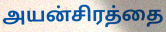
அயன்சிரத்தை